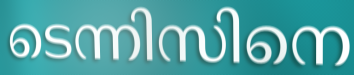
ടെന്നിസിനെ